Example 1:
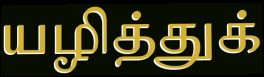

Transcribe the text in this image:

யழித்துக்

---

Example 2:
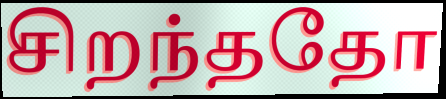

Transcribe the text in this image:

சிறந்ததோ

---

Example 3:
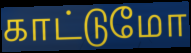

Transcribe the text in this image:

காட்டுமோ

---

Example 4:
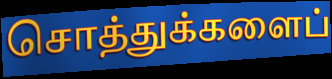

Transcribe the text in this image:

சொத்துக்களைப்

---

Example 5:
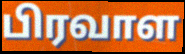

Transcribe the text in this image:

பிரவாள